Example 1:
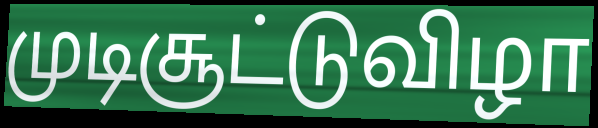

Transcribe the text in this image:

முடிசூட்டுவிழா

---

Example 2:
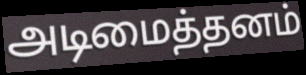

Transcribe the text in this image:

அடிமைத்தனம்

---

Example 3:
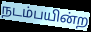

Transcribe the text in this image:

நடம்பயின்ற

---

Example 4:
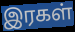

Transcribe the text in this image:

இரகள்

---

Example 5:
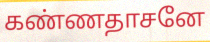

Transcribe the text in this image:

கண்ணதாசனே